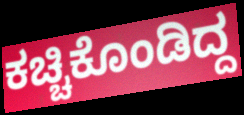
ಕಚ್ಚಿಕೊಂಡಿದ್ದ